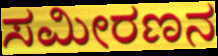
ಸಮೀರಣನ